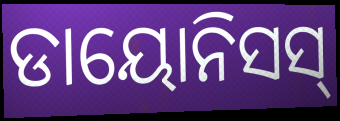
ଡାୟୋନିସସ୍